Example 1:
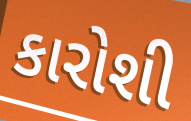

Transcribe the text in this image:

કારોશી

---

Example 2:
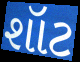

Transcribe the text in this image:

શૉટ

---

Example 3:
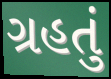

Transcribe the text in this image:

ગ્રહતું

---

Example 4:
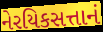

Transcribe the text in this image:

નેરયિકસત્તાનં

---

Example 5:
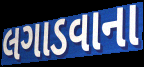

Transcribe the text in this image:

લગાડવાના